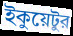
ইকুয়েটুর